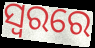
ସ୍ବରରେ